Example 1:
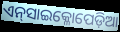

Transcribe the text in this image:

ଏନ୍‌ସାଇକ୍ଳୋପେଡ଼ିଆ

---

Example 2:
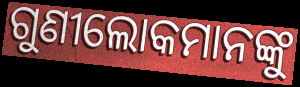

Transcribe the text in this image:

ଗୁଣୀଲୋକମାନଙ୍କୁ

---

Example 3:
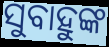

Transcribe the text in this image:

ସୁବାହୁଙ୍କ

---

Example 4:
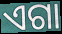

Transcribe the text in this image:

ଏଗା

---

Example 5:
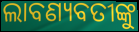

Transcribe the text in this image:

ଲାବଣ୍ୟବତୀଙ୍କୁ